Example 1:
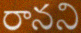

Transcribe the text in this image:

రానని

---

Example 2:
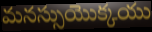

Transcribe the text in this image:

మనస్సుయొక్కయు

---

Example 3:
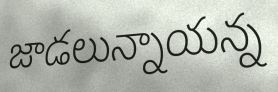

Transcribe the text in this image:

జాడలున్నాయన్న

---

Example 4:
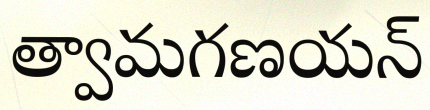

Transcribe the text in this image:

త్వామగణయన్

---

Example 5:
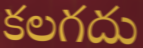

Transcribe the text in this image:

కలగదు